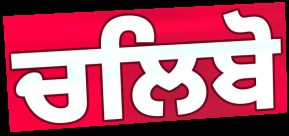
ਚਲਿਬੋ